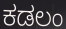
ಕಡಲಂ